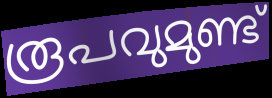
രൂപവുമുണ്ട്